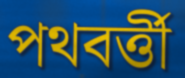
পথবর্ত্তী